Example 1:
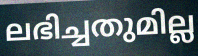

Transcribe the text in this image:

ലഭിച്ചതുമില്ല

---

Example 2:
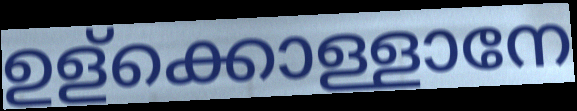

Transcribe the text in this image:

ഉള്ക്കൊള്ളാനേ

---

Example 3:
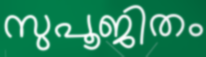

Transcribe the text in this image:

സുപൂജിതം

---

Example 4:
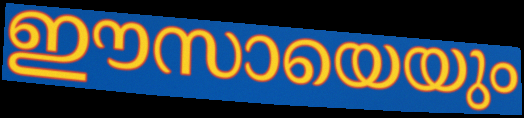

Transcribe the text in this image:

ഈസായെയും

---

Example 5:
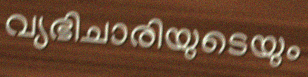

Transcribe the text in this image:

വ്യഭിചാരിയുടെയും